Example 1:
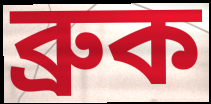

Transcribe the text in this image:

ব্রুক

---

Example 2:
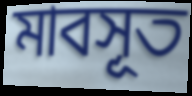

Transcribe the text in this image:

মাবসূত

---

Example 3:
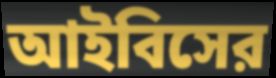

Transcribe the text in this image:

আইবিসের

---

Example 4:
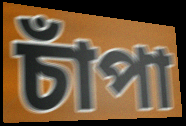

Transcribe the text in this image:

চাঁপা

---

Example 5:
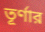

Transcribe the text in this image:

তূর্ণার